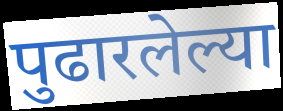
पुढारलेल्या